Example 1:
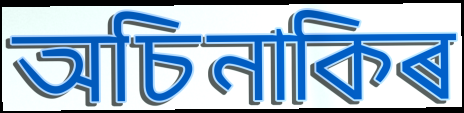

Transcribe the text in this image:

অচিনাকিৰ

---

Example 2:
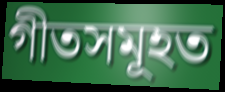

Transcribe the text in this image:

গীতসমূহত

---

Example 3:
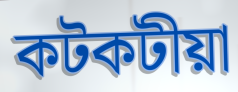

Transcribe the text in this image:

কটকটীয়া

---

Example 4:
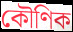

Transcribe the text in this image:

কৌণিক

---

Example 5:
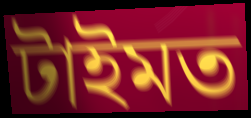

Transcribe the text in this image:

টাইমত